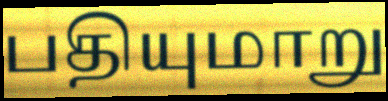
பதியுமாறு